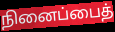
நினைப்பைத்